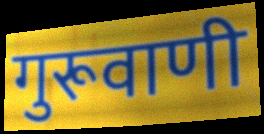
गुरूवाणी